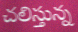
చలిస్తున్న